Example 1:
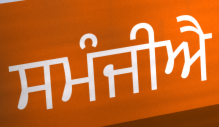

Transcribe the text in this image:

ਸਮੰਜੀਐ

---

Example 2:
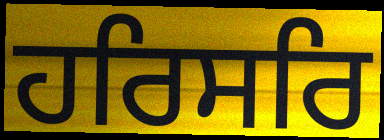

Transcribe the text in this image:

ਹਰਿਸਰਿ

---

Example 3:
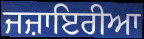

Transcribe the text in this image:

ਜਜ਼ਾਇਰੀਆ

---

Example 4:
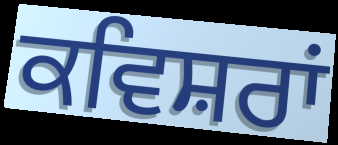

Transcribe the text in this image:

ਕਵਿਸ਼ਰਾਂ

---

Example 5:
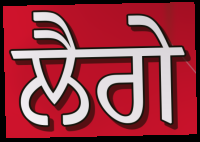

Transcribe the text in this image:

ਲੈਗੇ